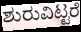
ಶುರುವಿಟ್ಟರೆ